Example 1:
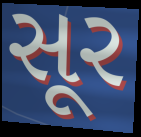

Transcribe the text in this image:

સૂર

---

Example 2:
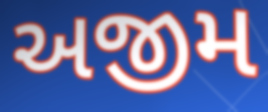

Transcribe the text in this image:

અજીમ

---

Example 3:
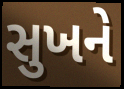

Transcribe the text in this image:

સુખને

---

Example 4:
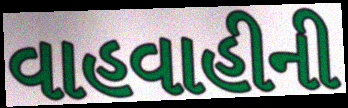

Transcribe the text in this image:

વાહવાહીની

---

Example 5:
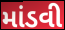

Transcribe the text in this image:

માંડવી